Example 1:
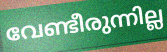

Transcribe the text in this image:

വേണ്ടീരുന്നില്ല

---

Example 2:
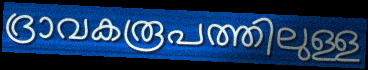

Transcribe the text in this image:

ദ്രാവകരൂപത്തിലുള്ള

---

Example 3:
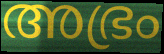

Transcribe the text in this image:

അഭ്രം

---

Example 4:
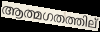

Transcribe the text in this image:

ആത്മഗതത്തില്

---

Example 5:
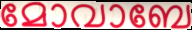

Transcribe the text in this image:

മോവാബേ